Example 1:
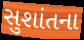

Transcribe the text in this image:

સુશાંતના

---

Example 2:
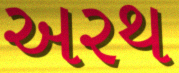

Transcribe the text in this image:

અરથ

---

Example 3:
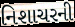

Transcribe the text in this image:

નિશાચરની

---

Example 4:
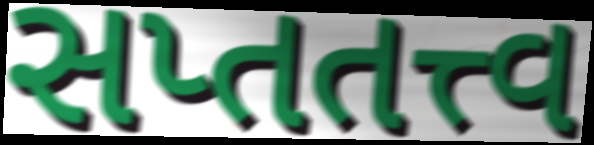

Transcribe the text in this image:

સપ્તતત્ત્વ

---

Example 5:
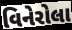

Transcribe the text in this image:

વિનેરોલા